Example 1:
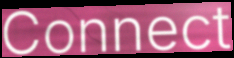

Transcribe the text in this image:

Connect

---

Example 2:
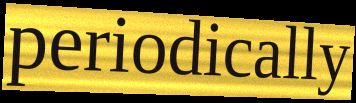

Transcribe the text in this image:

periodically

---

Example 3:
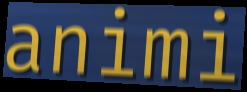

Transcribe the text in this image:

animi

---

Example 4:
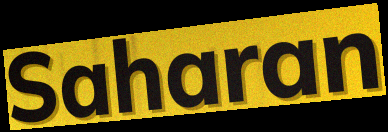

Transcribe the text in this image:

Saharan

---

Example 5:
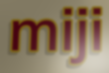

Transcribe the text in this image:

miji